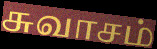
சுவாசம்